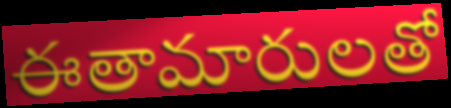
ఈతామారులతో